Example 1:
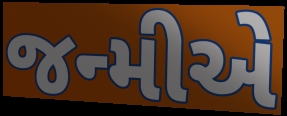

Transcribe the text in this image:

જન્મીએ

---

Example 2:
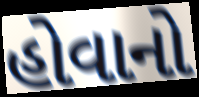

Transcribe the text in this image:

હોવાનો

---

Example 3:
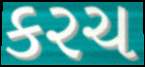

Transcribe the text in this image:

કરચ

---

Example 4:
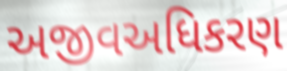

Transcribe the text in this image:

અજીવઅધિકરણ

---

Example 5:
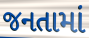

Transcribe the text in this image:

જનતામાં